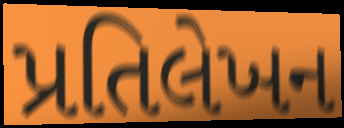
પ્રતિલેખન